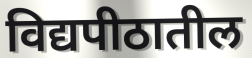
विद्यपीठातील